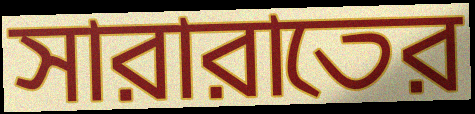
সারারাতের